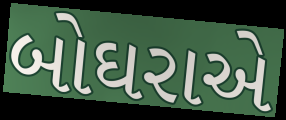
બોઘરાએ